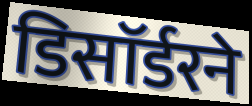
डिसॉर्डरने